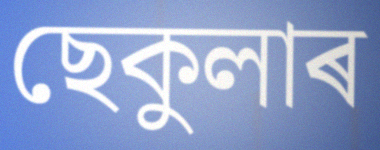
ছেকুলাৰ